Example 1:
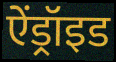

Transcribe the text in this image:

ऐंड्रॉइड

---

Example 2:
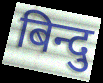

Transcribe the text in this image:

बिन्दु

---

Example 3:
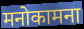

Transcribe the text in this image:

मनोकामना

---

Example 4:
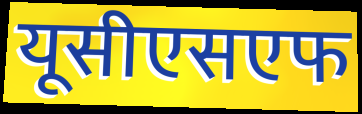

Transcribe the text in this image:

यूसीएसएफ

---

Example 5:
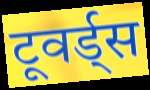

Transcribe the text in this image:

टूवर्ड्स